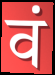
वं